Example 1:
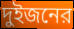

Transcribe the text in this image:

দুইজনের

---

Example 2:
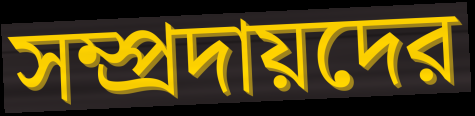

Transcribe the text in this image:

সম্প্রদায়দের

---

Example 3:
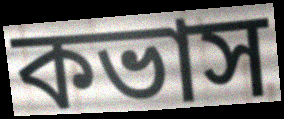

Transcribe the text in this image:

কভাস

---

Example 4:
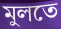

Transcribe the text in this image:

মুলতে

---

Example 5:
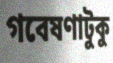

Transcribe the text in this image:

গবেষণাটুকু